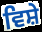
ਵਿਸ਼ੇ